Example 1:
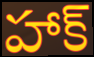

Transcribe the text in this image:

హాక్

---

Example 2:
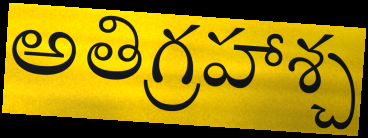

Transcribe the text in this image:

అతిగ్రహాశ్చ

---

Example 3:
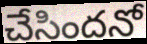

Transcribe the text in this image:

చేసిందనో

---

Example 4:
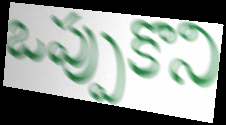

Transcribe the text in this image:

ఒప్పుకొని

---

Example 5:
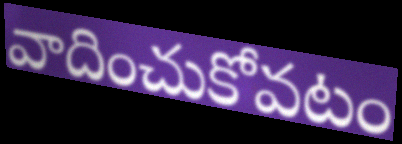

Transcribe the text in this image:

వాదించుకోవటం